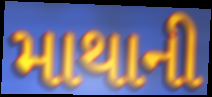
માથાની